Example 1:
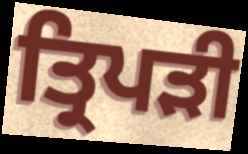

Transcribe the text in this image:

ਤ੍ਰਿਪਡ਼ੀ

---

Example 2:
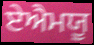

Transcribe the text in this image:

ਏਐਮਯੂ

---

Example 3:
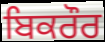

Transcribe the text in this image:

ਬਿਕਰੌਰ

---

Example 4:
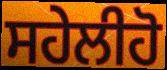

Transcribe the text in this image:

ਸਹੇਲੀਹੋ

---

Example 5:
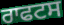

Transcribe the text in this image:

ਰਾਫਟਸ